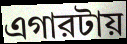
এগারটায়